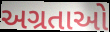
અગ્રતાઓ